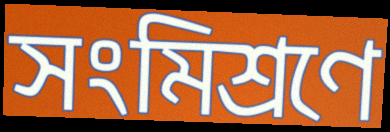
সংমিশ্রণে